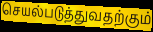
செயல்படுத்துவதற்கும்